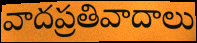
వాదప్రతివాదాలు